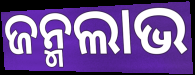
ଜନ୍ମଲାଭ